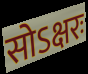
सोऽक्षरः